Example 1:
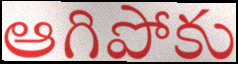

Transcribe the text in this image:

ఆగిపోకు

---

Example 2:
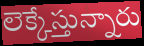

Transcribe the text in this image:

లెక్కేస్తున్నారు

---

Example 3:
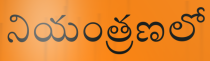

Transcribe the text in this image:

నియంత్రణలో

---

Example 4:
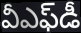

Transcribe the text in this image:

వీఎఫ్‌డీ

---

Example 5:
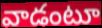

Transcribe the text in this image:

వాడంటూ